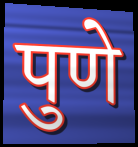
पुणे